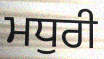
ਮਧੁਰੀ